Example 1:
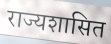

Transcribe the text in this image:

राज्यशासित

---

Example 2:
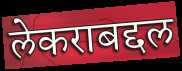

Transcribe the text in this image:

लेकराबद्दल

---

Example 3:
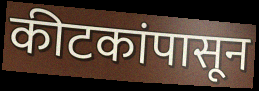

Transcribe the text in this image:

कीटकांपासून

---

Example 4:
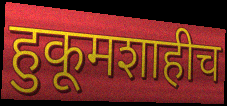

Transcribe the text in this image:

हुकूमशाहीच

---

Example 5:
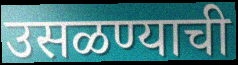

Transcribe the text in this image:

उसळण्याची